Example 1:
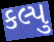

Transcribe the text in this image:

કલ્પુ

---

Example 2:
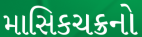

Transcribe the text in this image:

માસિકચક્રનો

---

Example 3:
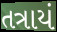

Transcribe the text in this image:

તત્રાયં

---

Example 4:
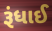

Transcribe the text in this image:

રૂંધાઈ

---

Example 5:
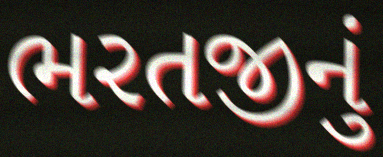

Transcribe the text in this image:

ભરતજીનું